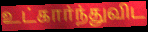
உட்கார்ந்துவிட